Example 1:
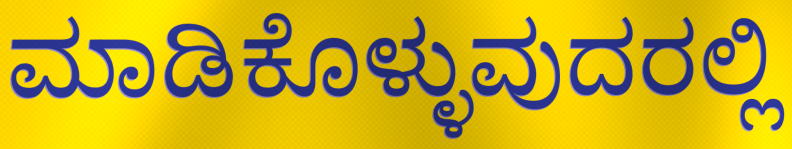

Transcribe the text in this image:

ಮಾಡಿಕೊಳ್ಳುವುದರಲ್ಲಿ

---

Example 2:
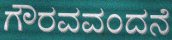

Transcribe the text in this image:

ಗೌರವವಂದನೆ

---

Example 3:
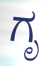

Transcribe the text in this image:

ಗೃ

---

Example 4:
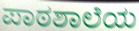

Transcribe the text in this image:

ಪಾಠಶಾಲೆಯ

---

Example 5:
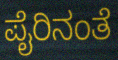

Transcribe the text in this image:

ಪೈರಿನಂತೆ